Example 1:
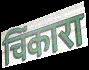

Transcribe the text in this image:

चिंकारा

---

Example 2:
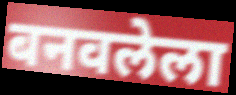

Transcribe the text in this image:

बनवलेला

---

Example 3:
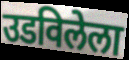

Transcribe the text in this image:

उडविलेला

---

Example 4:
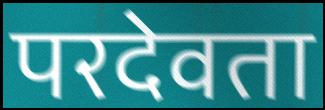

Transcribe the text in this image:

परदेवता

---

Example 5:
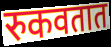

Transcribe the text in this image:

रुकवतात